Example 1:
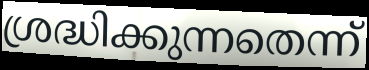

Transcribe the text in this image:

ശ്രദ്ധിക്കുന്നതെന്ന്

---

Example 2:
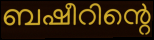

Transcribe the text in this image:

ബഷീറിന്റെ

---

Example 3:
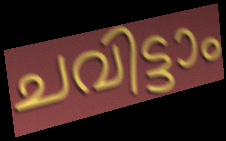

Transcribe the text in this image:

ചവിട്ടാം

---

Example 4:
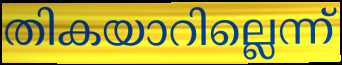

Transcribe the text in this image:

തികയാറില്ലെന്ന്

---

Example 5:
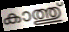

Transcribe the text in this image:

കാത്തു്